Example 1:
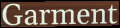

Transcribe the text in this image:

Garment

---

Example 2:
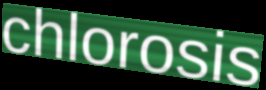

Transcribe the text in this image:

chlorosis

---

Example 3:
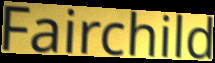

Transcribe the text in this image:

Fairchild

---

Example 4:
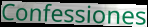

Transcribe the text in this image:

Confessiones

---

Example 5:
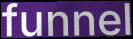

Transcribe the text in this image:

funnel